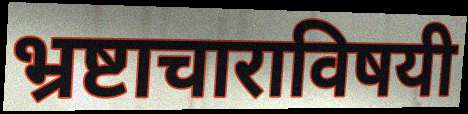
भ्रष्टाचाराविषयी